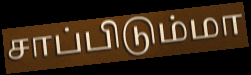
சாப்பிடும்மா